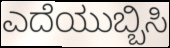
ಎದೆಯುಬ್ಬಿಸಿ